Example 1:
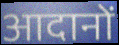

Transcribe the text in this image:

आदानों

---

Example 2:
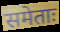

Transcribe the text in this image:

समेताः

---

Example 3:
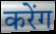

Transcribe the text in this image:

करेंग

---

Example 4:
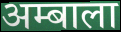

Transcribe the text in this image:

अम्‍बाला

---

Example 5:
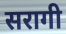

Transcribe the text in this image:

सरागी